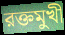
রক্তমুখী